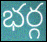
భర్గ